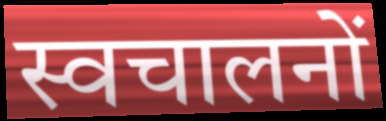
स्वचालनों